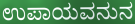
ಉಪಾಯವನುನ